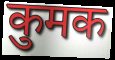
कुमक